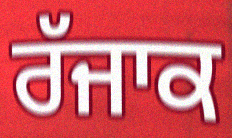
ਰੱਜਾਕ